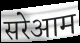
सरेआम